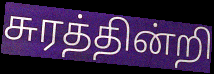
சுரத்தின்றி